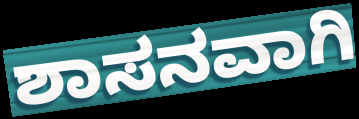
ಶಾಸನವಾಗಿ